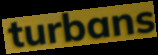
turbans